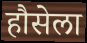
हौसेला